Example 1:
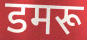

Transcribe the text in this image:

डमरू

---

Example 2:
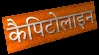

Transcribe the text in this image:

कैपिटोलाइन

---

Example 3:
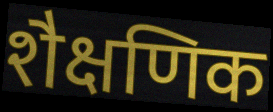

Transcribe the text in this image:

शैक्षणिक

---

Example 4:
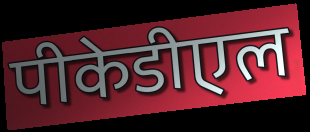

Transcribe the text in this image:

पीकेडीएल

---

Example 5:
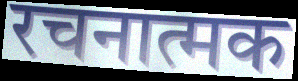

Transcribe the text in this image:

रचनात्मक